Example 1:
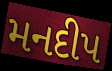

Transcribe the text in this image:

મનદીપ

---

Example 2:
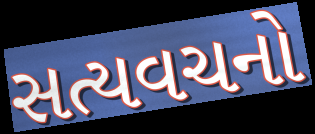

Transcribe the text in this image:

સત્યવચનો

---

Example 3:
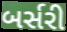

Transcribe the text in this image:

બર્સરી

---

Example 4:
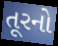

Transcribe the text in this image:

તૂરનો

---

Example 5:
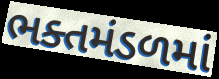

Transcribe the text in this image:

ભક્તમંડળમાં